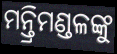
ମନ୍ତ୍ରିମଣ୍ଡଳଙ୍କୁ